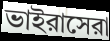
ভাইরাসেরা